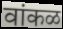
वांकळ